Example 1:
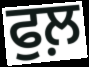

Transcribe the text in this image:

ਫੁਲ਼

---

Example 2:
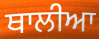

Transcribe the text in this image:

ਥਾਲੀਆ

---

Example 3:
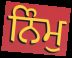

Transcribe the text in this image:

ਨਿੰਮੁ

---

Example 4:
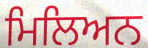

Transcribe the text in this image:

ਮਿਲਿਅਨ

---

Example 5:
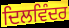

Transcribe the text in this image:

ਦਿਲਵਿੰਦਰ